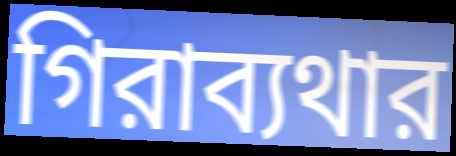
গিরাব্যথার